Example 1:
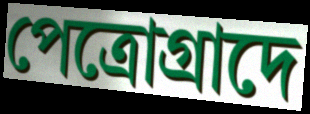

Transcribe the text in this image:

পেত্রোগ্রাদে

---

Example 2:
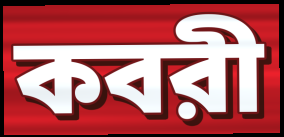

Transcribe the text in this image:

কবরী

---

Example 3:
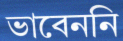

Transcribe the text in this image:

ভাবেননি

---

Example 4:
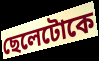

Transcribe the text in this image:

ছেলেটোকে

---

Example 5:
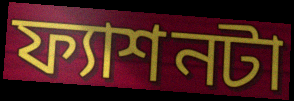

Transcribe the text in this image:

ফ্যাশনটা